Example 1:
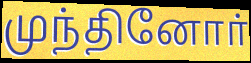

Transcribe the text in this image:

முந்தினோர்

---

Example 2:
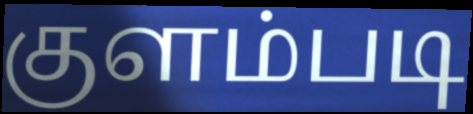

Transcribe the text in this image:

குளம்படி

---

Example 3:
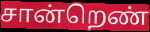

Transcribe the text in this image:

சான்றெண்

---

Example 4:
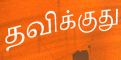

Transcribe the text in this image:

தவிக்குது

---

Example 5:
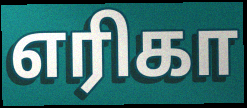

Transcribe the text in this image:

எரிகா